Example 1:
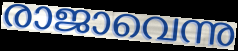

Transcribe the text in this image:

രാജാവെന്നു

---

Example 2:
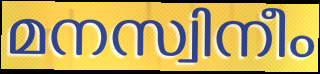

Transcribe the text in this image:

മനസ്വിനീം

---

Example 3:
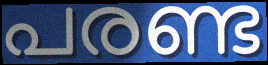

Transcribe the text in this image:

പരണ്ട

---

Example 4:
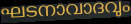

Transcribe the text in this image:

ഘടനാവാദവും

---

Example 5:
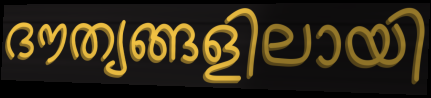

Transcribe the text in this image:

ദൗത്യങ്ങളിലായി